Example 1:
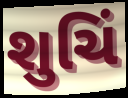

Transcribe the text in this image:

શુચિં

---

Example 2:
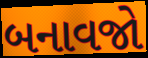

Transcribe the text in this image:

બનાવજો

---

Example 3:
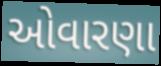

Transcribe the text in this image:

ઓવારણા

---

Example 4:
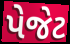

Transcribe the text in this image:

પેજેટ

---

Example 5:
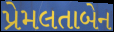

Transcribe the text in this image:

પ્રેમલતાબેન